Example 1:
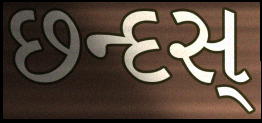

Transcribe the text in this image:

છન્દસ્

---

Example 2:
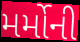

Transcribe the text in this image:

મર્મોની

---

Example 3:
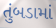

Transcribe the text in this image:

તુંબડામાં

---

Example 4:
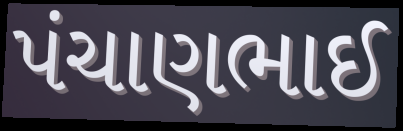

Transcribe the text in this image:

પંચાણભાઈ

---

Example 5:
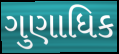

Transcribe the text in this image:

ગુણાધિક